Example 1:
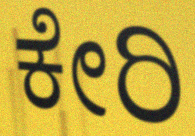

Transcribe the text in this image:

ಕೇರಿ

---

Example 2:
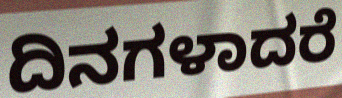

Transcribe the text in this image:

ದಿನಗಳಾದರೆ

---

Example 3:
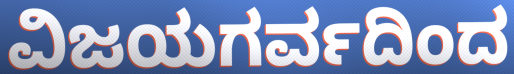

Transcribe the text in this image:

ವಿಜಯಗರ್ವದಿಂದ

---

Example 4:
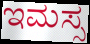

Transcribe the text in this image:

ಇಮಸ್ಸ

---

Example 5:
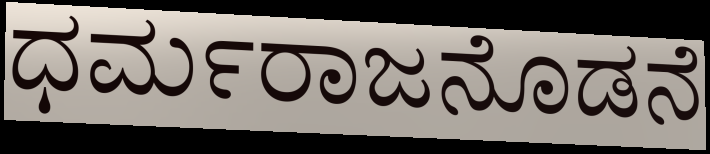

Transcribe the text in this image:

ಧರ್ಮರಾಜನೊಡನೆ